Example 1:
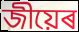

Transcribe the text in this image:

জীয়েৰ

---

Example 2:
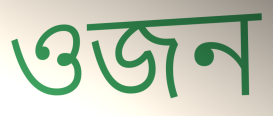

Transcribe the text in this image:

ওজন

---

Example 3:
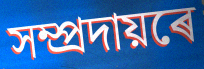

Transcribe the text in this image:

সম্প্ৰদায়ৰে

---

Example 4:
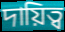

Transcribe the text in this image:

দায়িত্ব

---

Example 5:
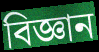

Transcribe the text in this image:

বিজ্ঞান